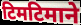
टिमटिमाने